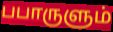
பபாருளும்